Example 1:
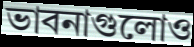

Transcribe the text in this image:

ভাবনাগুলোও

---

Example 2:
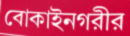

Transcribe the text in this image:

বোকাইনগরীর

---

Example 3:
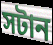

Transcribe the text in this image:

সটান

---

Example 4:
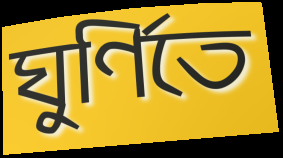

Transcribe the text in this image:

ঘুর্ণিতে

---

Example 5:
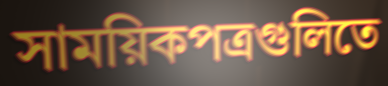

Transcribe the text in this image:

সাময়িকপত্রগুলিতে